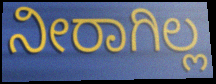
ನೀರಾಗಿಲ್ಲ